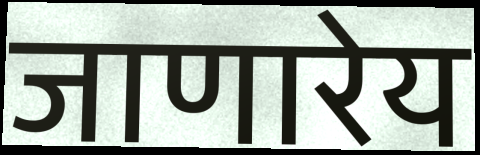
जाणारेय